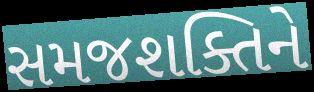
સમજશક્તિને